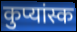
कुप्यांस्क